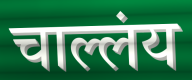
चाल्लंय